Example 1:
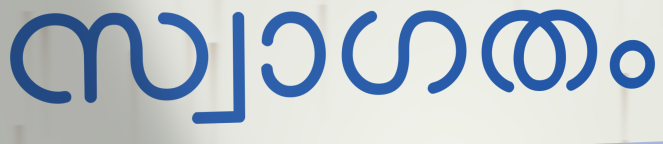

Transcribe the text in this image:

സ്വാഗതം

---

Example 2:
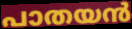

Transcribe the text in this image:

പാതയൻ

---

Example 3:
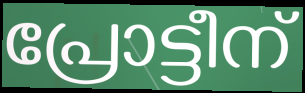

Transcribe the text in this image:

പ്രോട്ടീന്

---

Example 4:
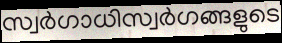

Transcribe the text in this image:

സ്വർഗാധിസ്വർഗങ്ങളുടെ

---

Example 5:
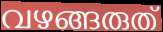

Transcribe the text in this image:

വഴങ്ങരുത്